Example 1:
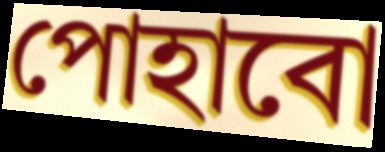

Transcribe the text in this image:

পোহাবো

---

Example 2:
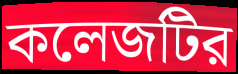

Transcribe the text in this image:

কলেজটির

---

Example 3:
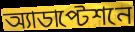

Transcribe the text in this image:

অ্যাডাপ্টেশনে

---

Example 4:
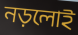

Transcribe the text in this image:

নড়লোই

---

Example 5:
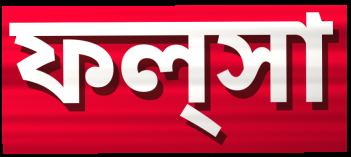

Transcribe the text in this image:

ফল্‌সা